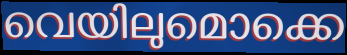
വെയിലുമൊക്കെ